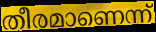
തീരമാണെന്ന്